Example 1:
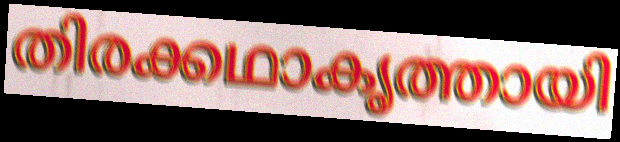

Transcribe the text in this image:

തിരക്കഥാകൃത്തായി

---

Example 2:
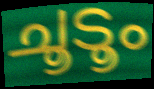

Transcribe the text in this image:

ചൂടൂം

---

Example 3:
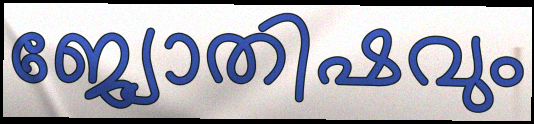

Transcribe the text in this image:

ജ്യോതിഷവും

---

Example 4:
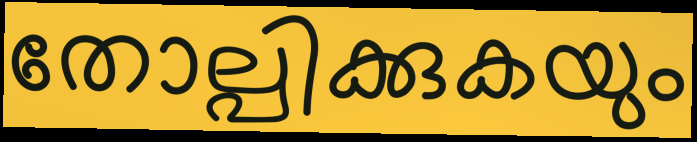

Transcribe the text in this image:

തോല്പിക്കുകയും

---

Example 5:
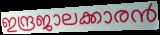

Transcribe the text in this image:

ഇന്ദ്രജാലക്കാരൻ